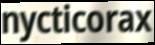
nycticorax